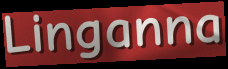
Linganna